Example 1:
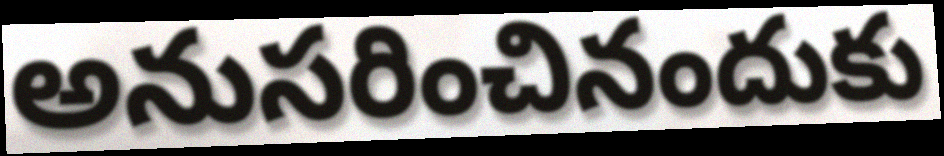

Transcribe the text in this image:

అనుసరించినందుకు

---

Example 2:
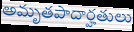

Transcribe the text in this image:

అమృతపాదార్హతులు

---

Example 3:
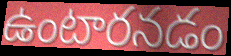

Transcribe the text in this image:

ఉంటారనడం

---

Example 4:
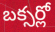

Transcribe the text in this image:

బక్సర్లో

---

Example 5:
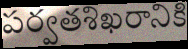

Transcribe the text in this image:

పర్వతశిఖరానికి